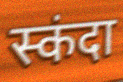
स्कंदा